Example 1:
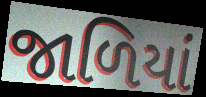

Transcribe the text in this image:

જાળિયાં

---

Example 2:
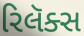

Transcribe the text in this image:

રિલૅક્સ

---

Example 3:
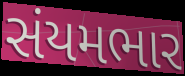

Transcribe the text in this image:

સંયમભાર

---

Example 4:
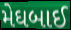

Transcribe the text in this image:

મેઘબાઈ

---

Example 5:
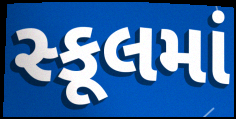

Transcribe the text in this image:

સ્કૂલમાં